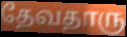
தேவதாரு